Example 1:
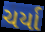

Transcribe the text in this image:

ચર્યા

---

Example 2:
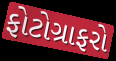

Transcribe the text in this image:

ફોટોગ્રાફરો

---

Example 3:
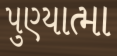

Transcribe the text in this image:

પુણ્યાત્મા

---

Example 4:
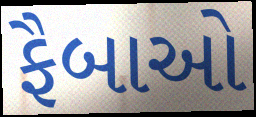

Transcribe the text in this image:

ફૈબાઓ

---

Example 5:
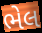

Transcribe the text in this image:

ભેલ